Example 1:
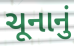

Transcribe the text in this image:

ચૂનાનું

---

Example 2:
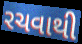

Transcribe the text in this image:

રચવાથી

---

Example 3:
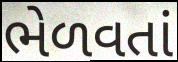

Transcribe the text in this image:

ભેળવતાં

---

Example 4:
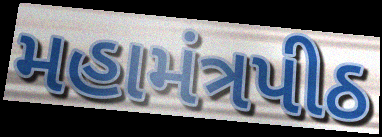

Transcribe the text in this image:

મહામંત્રપીઠ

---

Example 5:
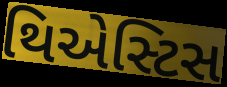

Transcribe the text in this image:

થિએસ્ટિસ